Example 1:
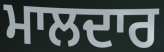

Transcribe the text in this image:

ਮਾਲਦਾਰ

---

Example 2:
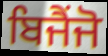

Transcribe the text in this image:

ਬਿਜੈਂਜੋ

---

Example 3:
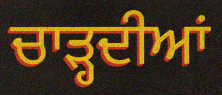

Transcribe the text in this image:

ਚਾੜ੍ਹਦੀਆਂ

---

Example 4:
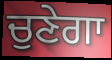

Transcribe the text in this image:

ਚੁਣੇਗਾ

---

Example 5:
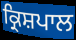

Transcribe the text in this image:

ਕ੍ਰਿਸ਼ਪਾਲ